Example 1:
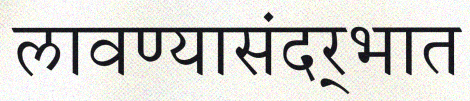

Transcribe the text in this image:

लावण्यासंदर्भात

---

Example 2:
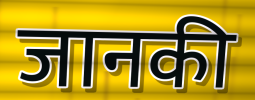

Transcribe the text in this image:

जानकी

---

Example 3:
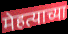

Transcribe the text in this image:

मेहत्याच्या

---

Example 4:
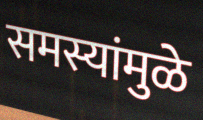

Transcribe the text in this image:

समस्यांमुळे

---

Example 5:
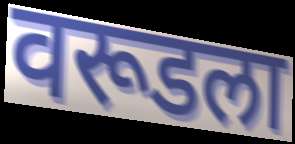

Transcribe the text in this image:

वरूडला